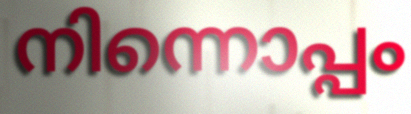
നിന്നൊപ്പം